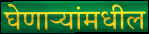
घेणाऱ्यांमधील